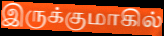
இருக்குமாகில்